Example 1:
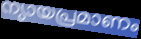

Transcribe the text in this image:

ന്യായപ്രമാണം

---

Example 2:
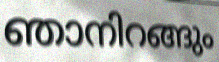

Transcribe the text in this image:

ഞാനിറങ്ങും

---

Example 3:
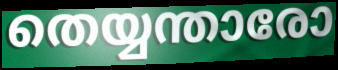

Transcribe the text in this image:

തെയ്യന്താരോ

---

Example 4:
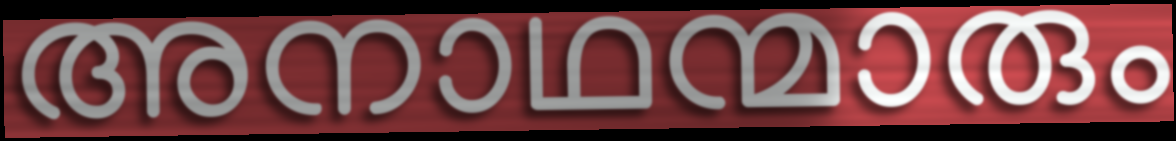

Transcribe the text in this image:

അനാഥന്മാരും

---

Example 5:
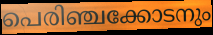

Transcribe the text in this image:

പെരിഞ്ചക്കോടനും